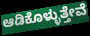
ಆಡಿಕೊಳ್ಳುತ್ತೇವೆ